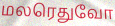
மலரெதுவோ